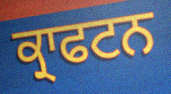
ਕ੍ਰਾਫਟਨ